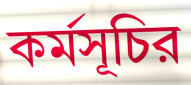
কর্মসূচির